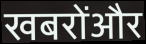
खबरोंऔर